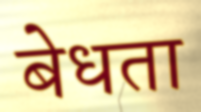
बेधता